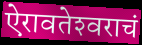
ऐरावतेश्वराचं